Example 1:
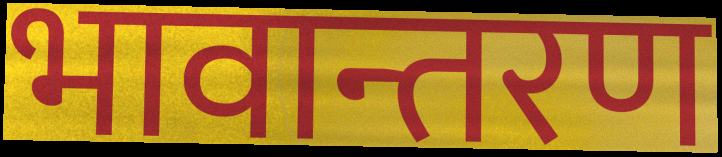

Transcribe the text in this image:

भावान्तरण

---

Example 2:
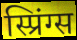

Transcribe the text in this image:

स्प्रिंग्स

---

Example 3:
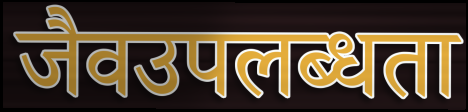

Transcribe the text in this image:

जैवउपलब्धता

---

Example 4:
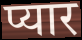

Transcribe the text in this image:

प्यार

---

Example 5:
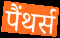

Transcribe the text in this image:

पैंथर्स